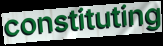
constituting